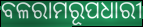
ବଳରାମରୂପଧାରୀ